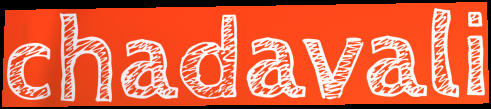
chadavali